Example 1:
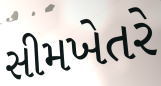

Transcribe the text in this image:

સીમખેતરે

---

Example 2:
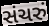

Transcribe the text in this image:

સંચરું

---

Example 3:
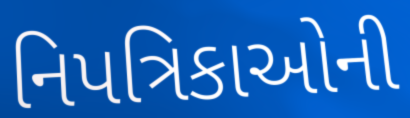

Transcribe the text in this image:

નિપત્રિકાઓની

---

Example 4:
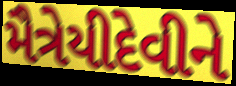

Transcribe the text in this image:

મૈત્રેયીદેવીને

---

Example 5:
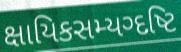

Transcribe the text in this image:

ક્ષાયિકસમ્યગ્દષ્ટિ